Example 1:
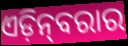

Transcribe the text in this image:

ଏଡ଼ିନ୍‍ବରାର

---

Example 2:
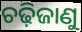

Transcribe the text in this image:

ଚଢ଼ିଜାଣୁ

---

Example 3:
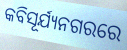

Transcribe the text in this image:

କବିସୂର୍ଯ୍ୟନଗରରେ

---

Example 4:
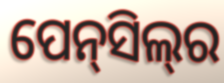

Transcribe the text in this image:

ପେନ୍‌ସିଲ୍‌ର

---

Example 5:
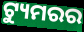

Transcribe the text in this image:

ଟ୍ୟୁମରର